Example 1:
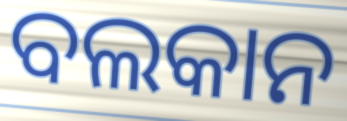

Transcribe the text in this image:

ବଲକାନ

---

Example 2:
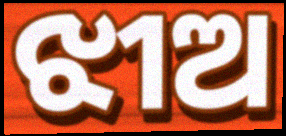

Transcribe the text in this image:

ଝୀଅ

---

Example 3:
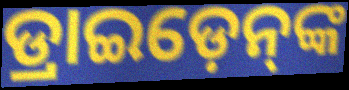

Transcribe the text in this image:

ଡ୍ରାଇଡ଼େନ୍‌ଙ୍କ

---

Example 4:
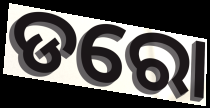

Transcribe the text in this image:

ଡରୋ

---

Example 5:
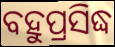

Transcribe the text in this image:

ବହୁପ୍ରସିଦ୍ଧ